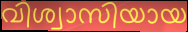
വിശ്വാസിയായ